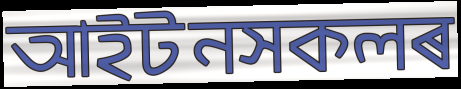
আইটনসকলৰ